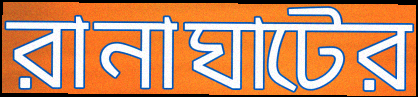
রানাঘাটের